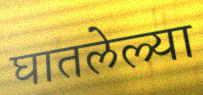
घातलेल्या